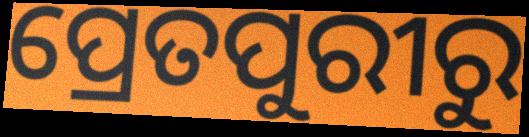
ପ୍ରେତପୁରୀରୁ